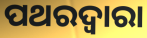
ପଥରଦ୍ୱାରା